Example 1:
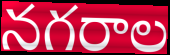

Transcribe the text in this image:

నగరాల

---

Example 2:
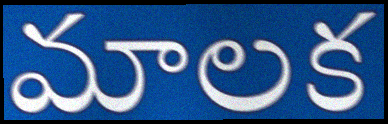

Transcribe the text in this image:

మాలక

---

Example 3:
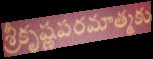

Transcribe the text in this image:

శ్రీకృష్ణపరమాత్మకు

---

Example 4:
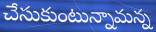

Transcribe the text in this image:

చేసుకుంటున్నామన్న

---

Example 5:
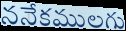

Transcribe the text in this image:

ననేకములగు